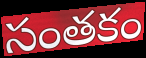
సంతకం